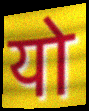
यो